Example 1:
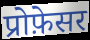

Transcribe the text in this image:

प्रोफ़ेसर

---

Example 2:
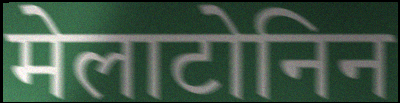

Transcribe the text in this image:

मेलाटोनिन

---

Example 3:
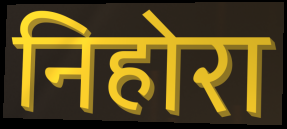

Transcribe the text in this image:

निहोरा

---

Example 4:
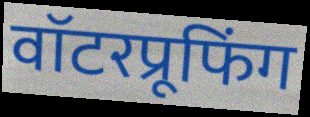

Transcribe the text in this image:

वॉटरप्रूफिंग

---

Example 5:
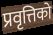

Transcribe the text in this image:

प्रवृत्तिको